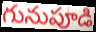
గునుపూడి